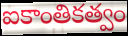
ఐకాంతికత్వం